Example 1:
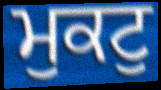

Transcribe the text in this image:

ਮੁਕਟੁ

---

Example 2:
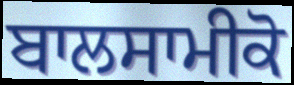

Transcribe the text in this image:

ਬਾਲਸਾਮੀਕੋ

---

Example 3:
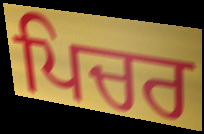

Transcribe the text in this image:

ਪਿਚਰ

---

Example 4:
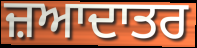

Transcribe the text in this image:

ਜ਼ਆਦਾਤਰ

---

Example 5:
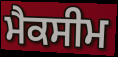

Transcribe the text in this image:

ਮੈਕਸੀਮ